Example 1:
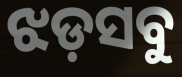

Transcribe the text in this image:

ଝଡ଼ସବୁ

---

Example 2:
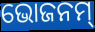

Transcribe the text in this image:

ଭୋଜନମ୍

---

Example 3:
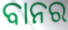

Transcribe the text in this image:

ବାନର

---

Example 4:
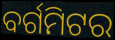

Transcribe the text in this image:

ବର୍ଗମିଟର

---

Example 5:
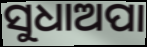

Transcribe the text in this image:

ସୁଧାଅପା